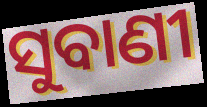
ସୁବାଣୀ